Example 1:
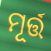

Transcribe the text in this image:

ମୂର୍ତ୍ତ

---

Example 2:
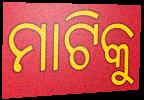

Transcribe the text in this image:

ମାଟିକୁ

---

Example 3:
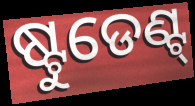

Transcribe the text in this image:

ଷ୍ଟୁଡେଣ୍ଟ୍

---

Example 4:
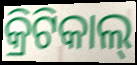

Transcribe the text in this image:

କ୍ରିଟିକାଲ୍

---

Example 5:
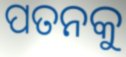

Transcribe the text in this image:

ପତନକୁ